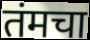
तंमचा